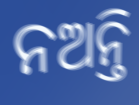
ନଅନ୍ତି